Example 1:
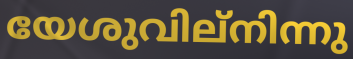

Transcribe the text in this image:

യേശുവില്നിന്നു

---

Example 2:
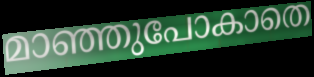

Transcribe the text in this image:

മാഞ്ഞുപോകാതെ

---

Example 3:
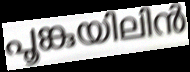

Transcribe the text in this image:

പൂങ്കുയിലിൻ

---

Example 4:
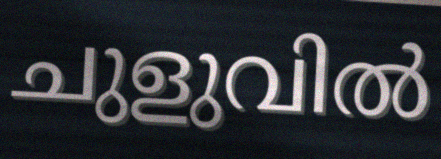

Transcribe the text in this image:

ചുളുവിൽ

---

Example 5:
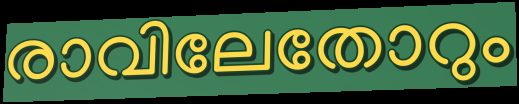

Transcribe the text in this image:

രാവിലേതോറും